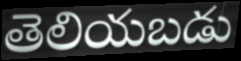
తెలియబడు